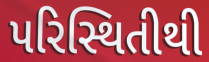
પરિસ્થિતીથી